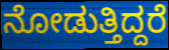
ನೋಡುತ್ತಿದ್ದರೆ